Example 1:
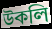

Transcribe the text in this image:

উকলি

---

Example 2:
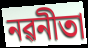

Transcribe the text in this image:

নৱনীতা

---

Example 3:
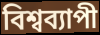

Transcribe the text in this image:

বিশ্বব্যাপী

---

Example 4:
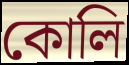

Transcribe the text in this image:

কোলি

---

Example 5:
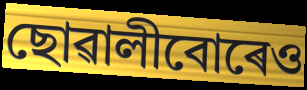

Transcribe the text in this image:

ছোৱালীবোৰেও